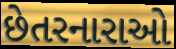
છેતરનારાઓ